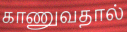
காணுவதால்